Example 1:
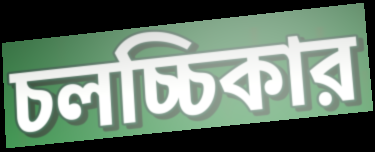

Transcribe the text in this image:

চলচ্চিকার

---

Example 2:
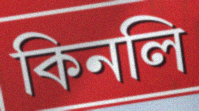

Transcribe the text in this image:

কিনলি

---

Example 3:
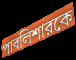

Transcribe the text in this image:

পাবলিশারকে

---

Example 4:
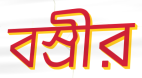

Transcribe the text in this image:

বস্রীর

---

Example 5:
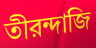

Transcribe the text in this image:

তীরন্দাজি